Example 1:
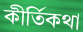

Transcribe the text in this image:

কীর্তিকথা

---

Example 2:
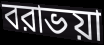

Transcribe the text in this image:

বরাভয়া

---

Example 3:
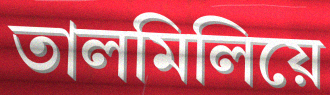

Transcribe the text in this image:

তালমিলিয়ে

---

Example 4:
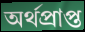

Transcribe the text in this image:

অর্থপ্রাপ্ত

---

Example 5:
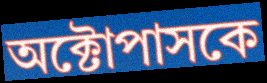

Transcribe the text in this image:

অক্টোপাসকে